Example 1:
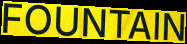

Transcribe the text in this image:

FOUNTAIN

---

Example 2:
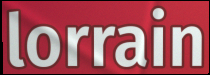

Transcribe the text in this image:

lorrain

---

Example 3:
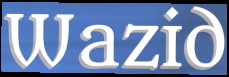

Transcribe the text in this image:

Wazid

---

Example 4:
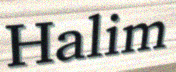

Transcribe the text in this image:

Halim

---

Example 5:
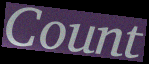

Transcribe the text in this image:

Count